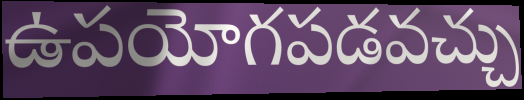
ఉపయోగపడవచ్చు